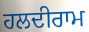
ਹਲਦੀਰਾਮ